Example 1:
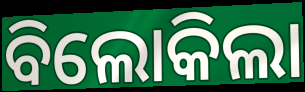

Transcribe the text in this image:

ବିଲୋକିଲା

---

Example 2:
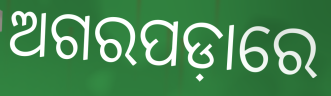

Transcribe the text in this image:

ଅଗରପଡ଼ାରେ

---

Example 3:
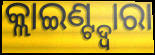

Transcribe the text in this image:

କ୍ଲାଇଣ୍ଟ୍ଦ୍ୱାରା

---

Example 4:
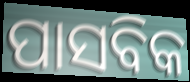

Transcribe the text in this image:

ପାସବିକ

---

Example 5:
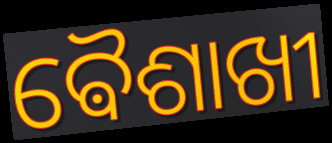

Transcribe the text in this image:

ଵୈଶାଖୀ